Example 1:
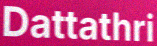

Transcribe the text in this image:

Dattathri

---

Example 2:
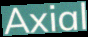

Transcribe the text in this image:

Axial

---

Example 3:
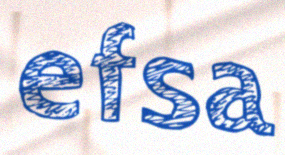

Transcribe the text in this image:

efsa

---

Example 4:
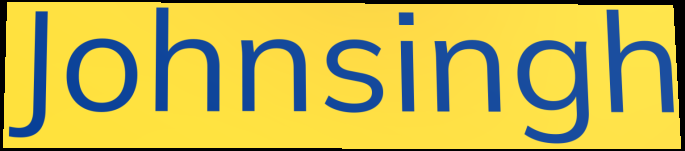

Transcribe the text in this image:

Johnsingh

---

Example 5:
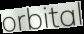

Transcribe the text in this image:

orbital